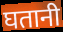
घतानी